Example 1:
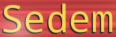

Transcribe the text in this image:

Sedem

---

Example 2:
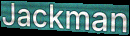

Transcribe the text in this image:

Jackman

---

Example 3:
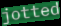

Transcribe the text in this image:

jotted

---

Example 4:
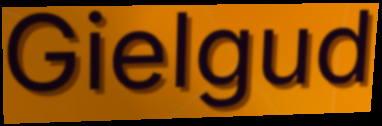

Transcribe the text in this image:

Gielgud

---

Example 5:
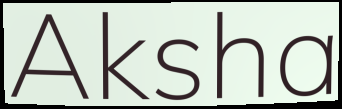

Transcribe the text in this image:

Aksha